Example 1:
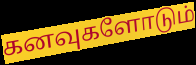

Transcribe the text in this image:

கனவுகளோடும்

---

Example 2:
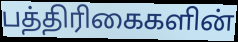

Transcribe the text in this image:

பத்திரிகைகளின்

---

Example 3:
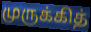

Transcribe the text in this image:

முருக்கித்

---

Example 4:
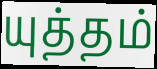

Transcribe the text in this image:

யுத்தம்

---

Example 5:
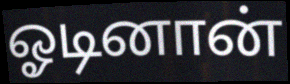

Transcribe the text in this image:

ஓடினான்